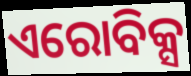
ଏରୋବିକ୍ସ